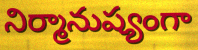
నిర్మానుష్యంగా